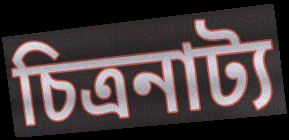
চিত্রনাট্য